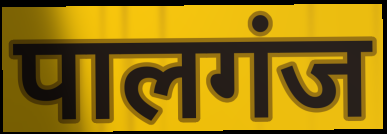
पालगंज